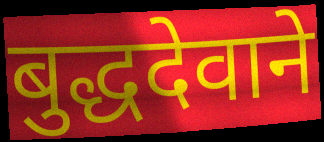
बुद्धदेवाने